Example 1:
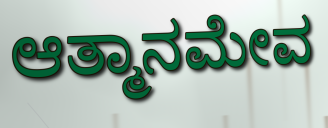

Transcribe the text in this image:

ಆತ್ಮಾನಮೇವ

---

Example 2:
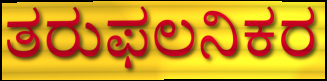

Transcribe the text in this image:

ತರುಫಲನಿಕರ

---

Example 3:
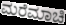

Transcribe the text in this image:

ಮರೆಮಾಚಿ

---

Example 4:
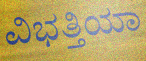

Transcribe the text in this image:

ವಿಭತ್ತಿಯಾ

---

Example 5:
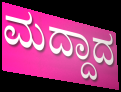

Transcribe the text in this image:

ಮದ್ದಾದ